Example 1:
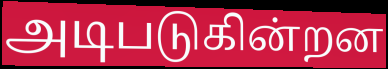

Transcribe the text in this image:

அடிபடுகின்றன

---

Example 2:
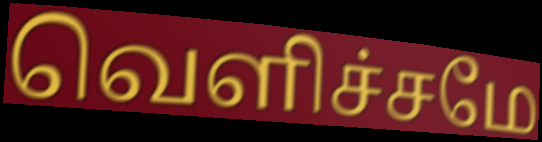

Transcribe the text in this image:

வெளிச்சமே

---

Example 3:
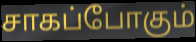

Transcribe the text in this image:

சாகப்போகும்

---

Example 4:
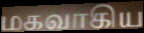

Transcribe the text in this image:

மகவாகிய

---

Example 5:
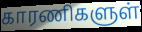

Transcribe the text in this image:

காரணிகளுள்